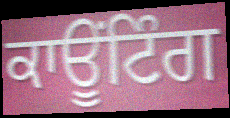
ਕਾਊਂਟਿੰਗ